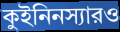
কুইনিনস্যারও